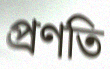
প্রণতি